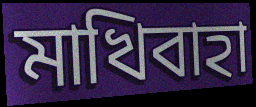
মাখিবাহা